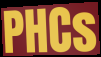
PHCs